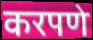
करपणे